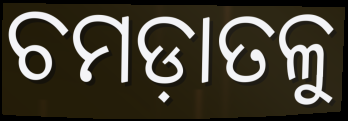
ଚମଡ଼ାତଳୁ